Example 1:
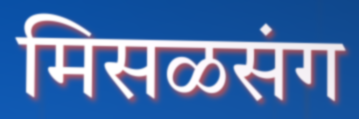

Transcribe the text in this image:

मिसळसंग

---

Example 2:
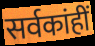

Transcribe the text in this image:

सर्वकांहीं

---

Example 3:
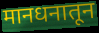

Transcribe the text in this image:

मानधनातून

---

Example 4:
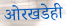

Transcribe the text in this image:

ओरखडेही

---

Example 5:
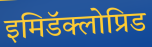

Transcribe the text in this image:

इमिडॅक्लोप्रिड